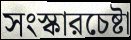
সংস্কারচেষ্টা